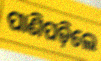
ପାଣିପଡ଼ିଲେ